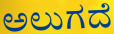
ಅಲುಗದೆ